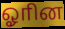
ஓரின